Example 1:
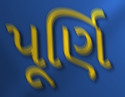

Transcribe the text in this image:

પૂર્ણિ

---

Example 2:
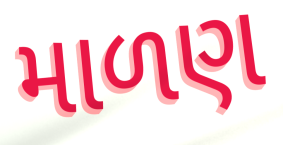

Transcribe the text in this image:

માળણ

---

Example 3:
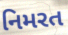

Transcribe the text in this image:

નિમરત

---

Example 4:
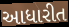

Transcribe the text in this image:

આધારીત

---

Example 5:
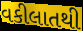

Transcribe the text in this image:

વકીલાતથી